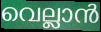
വെല്ലാൻ